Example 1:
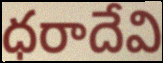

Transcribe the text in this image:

ధరాదేవి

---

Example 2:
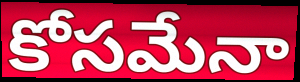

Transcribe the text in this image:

కోసమేనా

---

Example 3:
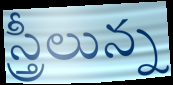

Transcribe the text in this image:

స్త్రీలున్న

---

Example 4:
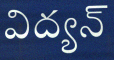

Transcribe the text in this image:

విద్యన్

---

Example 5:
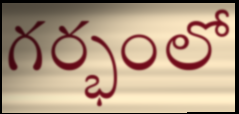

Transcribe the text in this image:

గర్భంలో